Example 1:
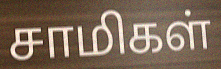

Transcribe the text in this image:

சாமிகள்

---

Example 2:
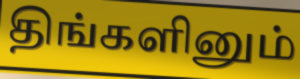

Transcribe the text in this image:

திங்களினும்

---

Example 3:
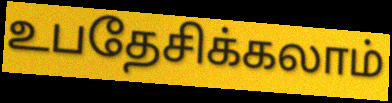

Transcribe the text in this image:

உபதேசிக்கலாம்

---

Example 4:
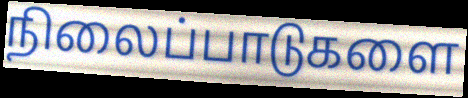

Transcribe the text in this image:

நிலைப்பாடுகளை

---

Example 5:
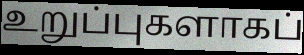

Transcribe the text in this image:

உறுப்புகளாகப்